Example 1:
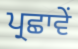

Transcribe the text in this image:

ਪ੍ਰਛਾਵੇਂ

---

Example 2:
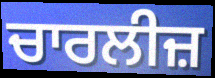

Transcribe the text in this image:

ਚਾਰਲੀਜ਼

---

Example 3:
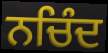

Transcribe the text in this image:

ਨਚਿੰਦ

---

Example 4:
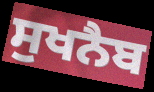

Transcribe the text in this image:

ਸੁਖਨੈਬ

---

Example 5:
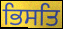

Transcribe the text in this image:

ਭਿਸਤਿ